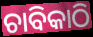
ଚାବିକାଠି